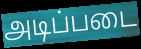
அடிப்படை